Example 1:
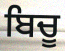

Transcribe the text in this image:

ਬਿਚੂ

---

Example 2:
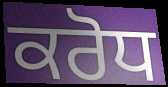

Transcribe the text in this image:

ਕਰੋਧ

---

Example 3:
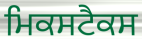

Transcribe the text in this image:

ਮਿਕਸਟੈਕਸ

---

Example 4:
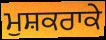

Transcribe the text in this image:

ਮੁਸ਼ਕਰਾਕੇ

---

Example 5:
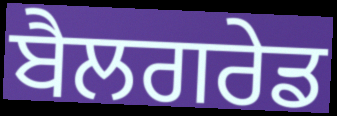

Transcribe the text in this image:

ਬੈਲਗਰੇਡ